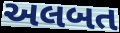
અલબત